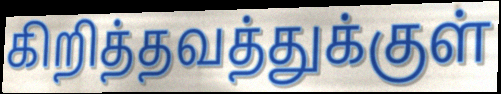
கிறித்தவத்துக்குள்